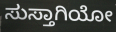
ಸುಸ್ತಾಗಿಯೋ